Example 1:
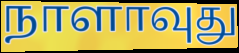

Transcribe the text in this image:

நாளாவுது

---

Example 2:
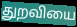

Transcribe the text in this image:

துறவியை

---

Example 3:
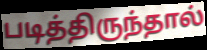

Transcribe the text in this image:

படித்திருந்தால்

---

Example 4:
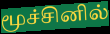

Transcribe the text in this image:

மூச்சினில்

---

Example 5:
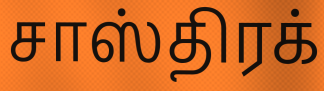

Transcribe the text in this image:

சாஸ்திரக்